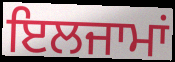
ਇਲਜਾਮਾਂ